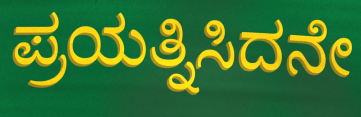
ಪ್ರಯತ್ನಿಸಿದನೇ